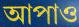
আপাও